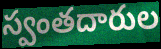
స్వంతదారుల